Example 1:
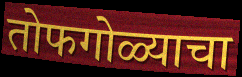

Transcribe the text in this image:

तोफगोळ्याचा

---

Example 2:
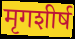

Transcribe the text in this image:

मृगशीर्ष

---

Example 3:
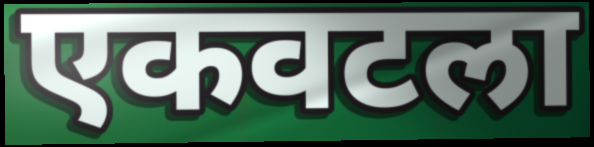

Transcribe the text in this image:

एकवटला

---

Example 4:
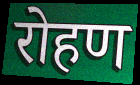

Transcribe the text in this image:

रोहण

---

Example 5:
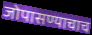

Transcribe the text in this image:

जोपासण्याचाच